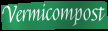
Vermicompost